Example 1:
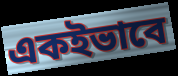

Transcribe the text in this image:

একইভাবে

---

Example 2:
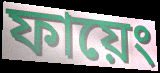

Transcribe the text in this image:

ফায়েং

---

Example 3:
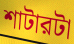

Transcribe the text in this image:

শাটারটা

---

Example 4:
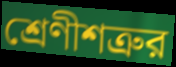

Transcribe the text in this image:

শ্রেণীশত্রুর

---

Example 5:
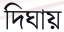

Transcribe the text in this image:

দিঘায়